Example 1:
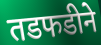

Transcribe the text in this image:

तडफडीने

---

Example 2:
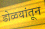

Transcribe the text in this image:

डोळयांतून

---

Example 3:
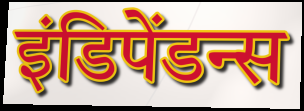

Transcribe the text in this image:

इंडिपेंडन्स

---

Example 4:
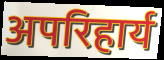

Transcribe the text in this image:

अपरिहार्य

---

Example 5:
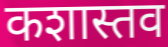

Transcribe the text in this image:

कशास्तव